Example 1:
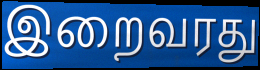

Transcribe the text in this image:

இறைவரது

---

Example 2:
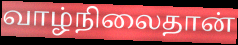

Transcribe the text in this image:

வாழ்நிலைதான்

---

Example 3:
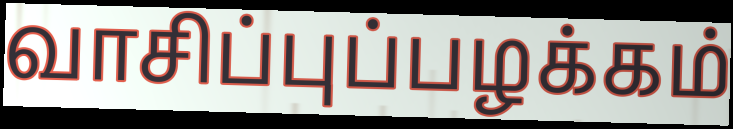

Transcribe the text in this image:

வாசிப்புப்பழக்கம்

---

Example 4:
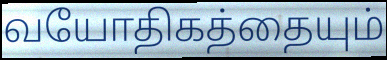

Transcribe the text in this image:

வயோதிகத்தையும்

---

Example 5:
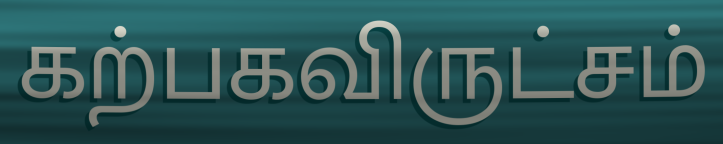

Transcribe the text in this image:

கற்பகவிருட்சம்